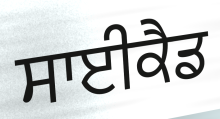
ਸਾਈਕੈਡ